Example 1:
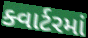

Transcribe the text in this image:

ક્વાર્ટરમાં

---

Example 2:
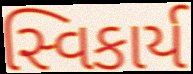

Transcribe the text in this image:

સ્વિકાર્ય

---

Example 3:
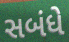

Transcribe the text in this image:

સબંધે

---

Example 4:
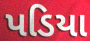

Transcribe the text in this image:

પડિયા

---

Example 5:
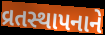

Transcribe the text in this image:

વ્રતસ્થાપનાને